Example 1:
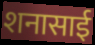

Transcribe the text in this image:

शनासाई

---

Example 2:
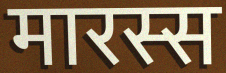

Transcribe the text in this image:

मारस्स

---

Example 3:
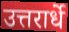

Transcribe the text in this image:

उत्तरार्धे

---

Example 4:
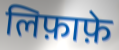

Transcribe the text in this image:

लिफ़ाफ़े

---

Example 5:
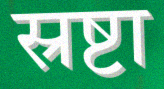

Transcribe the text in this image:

स्रष्टा